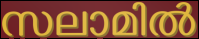
സലാമിൽ